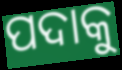
ପଦାକୁ